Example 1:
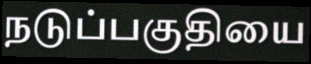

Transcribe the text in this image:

நடுப்பகுதியை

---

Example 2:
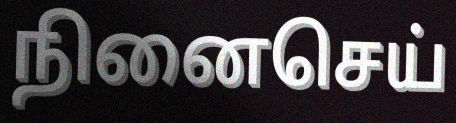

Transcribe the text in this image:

நினைசெய்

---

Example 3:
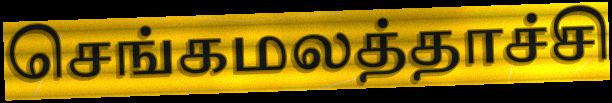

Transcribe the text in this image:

செங்கமலத்தாச்சி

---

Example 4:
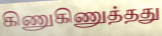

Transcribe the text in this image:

கிணுகிணுத்தது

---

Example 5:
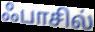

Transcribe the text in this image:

ஃபாசில்